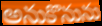
అనుకొనును